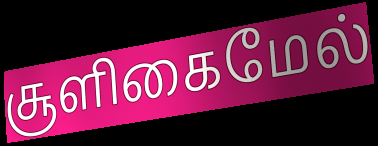
சூளிகைமேல்